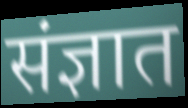
संज्ञात